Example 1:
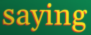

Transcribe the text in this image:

saying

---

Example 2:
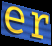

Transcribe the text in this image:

er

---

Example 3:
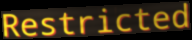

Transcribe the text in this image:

Restricted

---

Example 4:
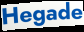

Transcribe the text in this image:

Hegade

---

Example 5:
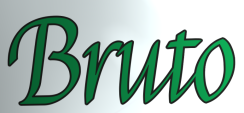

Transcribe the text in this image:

Bruto